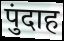
पुंदाह